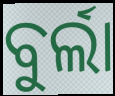
ବୁର୍ଲା